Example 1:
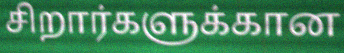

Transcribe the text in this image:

சிறார்களுக்கான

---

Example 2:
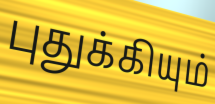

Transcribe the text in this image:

புதுக்கியும்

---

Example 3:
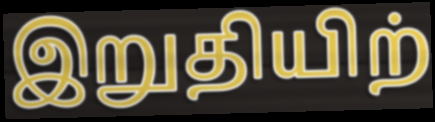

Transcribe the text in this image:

இறுதியிற்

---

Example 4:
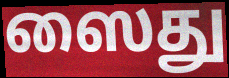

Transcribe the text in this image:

ஸைது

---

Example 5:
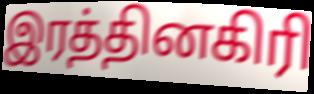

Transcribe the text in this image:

இரத்தினகிரி